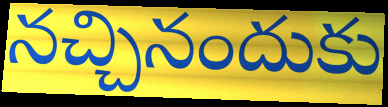
నచ్చినందుకు